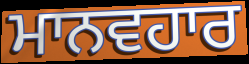
ਮਾਨਵਹਾਰ